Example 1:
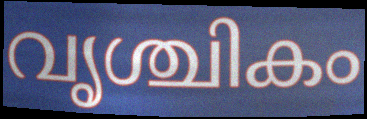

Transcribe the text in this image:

വൃശ്ചികം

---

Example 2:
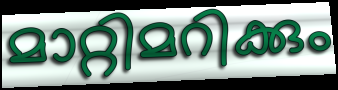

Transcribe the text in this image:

മാറ്റിമറിക്കും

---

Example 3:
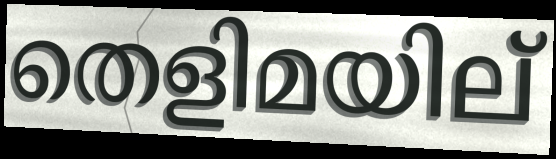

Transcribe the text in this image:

തെളിമയില്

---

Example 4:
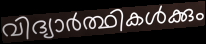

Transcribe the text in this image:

വിദ്യാർത്ഥികൾക്കും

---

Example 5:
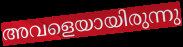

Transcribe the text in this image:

അവളെയായിരുന്നു